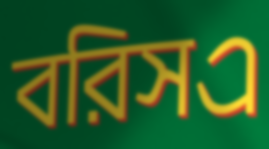
বরিসএ